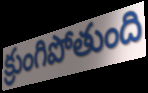
క్రుంగిపోతుంది